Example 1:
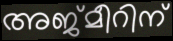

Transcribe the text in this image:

അജ്മീറിന്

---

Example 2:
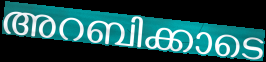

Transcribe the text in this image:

അറബിക്കാടെ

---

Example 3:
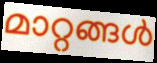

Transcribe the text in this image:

മാറ്റങ്ങൾ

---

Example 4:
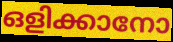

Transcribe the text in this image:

ഒളിക്കാനോ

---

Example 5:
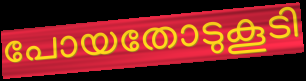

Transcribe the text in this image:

പോയതോടുകൂടി